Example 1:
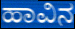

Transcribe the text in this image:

ಹಾವಿನ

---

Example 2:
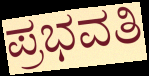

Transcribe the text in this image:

ಪ್ರಭವತಿ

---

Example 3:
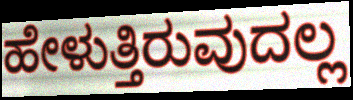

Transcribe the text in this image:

ಹೇಳುತ್ತಿರುವುದಲ್ಲ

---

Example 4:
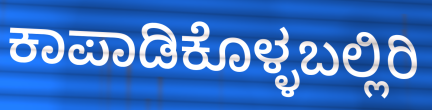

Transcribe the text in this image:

ಕಾಪಾಡಿಕೊಳ್ಳಬಲ್ಲಿರಿ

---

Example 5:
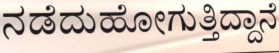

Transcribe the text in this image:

ನಡೆದುಹೋಗುತ್ತಿದ್ದಾನೆ